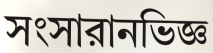
সংসারানভিজ্ঞ